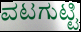
ವಟಗುಟ್ಟಿ